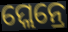
ପ୍ଲେନ୍ରେ